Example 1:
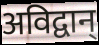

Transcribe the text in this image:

अविद्वान्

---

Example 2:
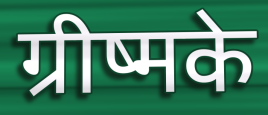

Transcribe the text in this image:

ग्रीष्मके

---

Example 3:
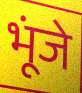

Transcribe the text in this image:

भूंजे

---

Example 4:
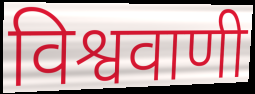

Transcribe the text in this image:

विश्ववाणी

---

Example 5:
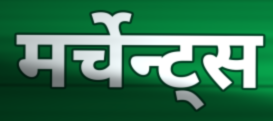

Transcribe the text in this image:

मर्चेन्ट्स